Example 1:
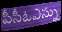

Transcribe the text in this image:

పీసీఓఎస్ను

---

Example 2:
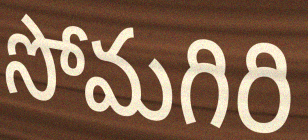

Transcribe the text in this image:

సోమగిరి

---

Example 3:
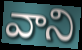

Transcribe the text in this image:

వాని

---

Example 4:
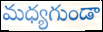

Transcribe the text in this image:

మధ్యగుండా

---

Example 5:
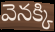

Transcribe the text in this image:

వెనక్కి